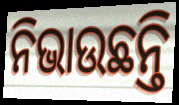
ନିଭାଉଛନ୍ତି